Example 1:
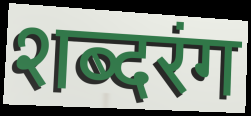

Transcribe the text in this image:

शब्दरंग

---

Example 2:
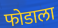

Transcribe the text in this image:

फोडाला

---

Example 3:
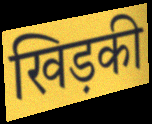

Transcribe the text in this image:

खिड़की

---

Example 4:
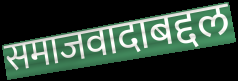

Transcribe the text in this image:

समाजवादाबद्दल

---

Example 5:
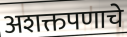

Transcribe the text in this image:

अशक्तपणाचे